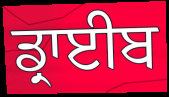
ਡ੍ਰਾਈਬ